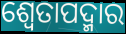
ଶ୍ଵେତାପଦ୍ମାର